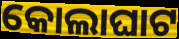
କୋଲାଘାଟ